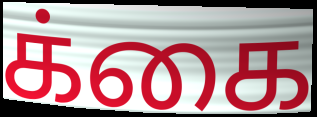
க்கை